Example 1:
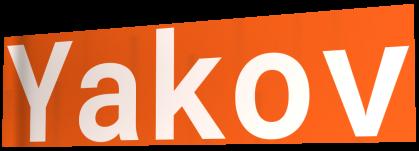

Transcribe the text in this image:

Yakov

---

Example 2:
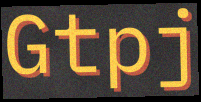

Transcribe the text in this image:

Gtpj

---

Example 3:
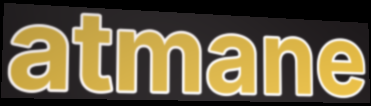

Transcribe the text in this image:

atmane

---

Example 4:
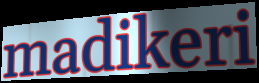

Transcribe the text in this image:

madikeri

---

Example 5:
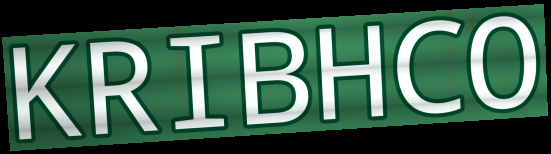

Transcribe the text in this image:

KRIBHCO